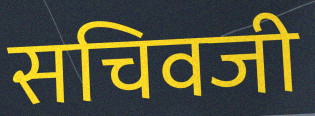
सचिवजी